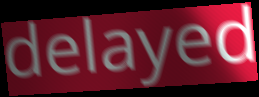
delayed